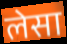
लेसा